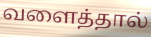
வளைத்தால்